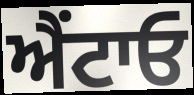
ਐਂਟਾਓ